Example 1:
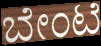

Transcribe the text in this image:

ಬೇಂಟೆ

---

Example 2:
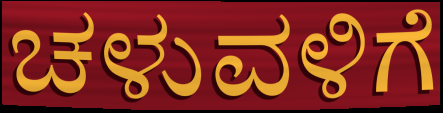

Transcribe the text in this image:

ಚಳುವಳಿಗೆ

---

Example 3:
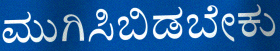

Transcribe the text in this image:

ಮುಗಿಸಿಬಿಡಬೇಕು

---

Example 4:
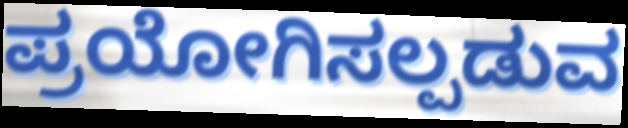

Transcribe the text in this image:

ಪ್ರಯೋಗಿಸಲ್ಪಡುವ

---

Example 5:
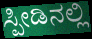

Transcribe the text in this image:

ಸ್ಪೀಡಿನಲ್ಲಿ